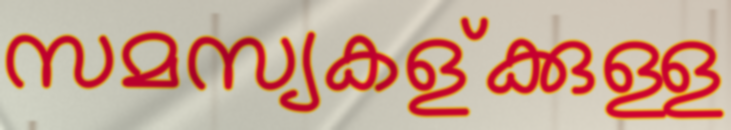
സമസ്യകള്ക്കുള്ള